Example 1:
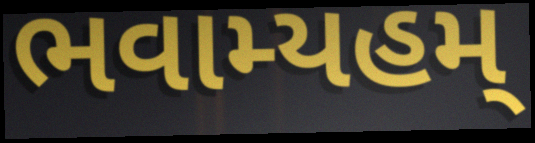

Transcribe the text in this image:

ભવામ્યહમ્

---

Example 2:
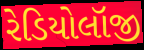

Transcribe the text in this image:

રેડિયોલૉજી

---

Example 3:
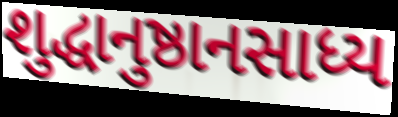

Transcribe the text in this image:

શુદ્ધાનુષ્ઠાનસાધ્ય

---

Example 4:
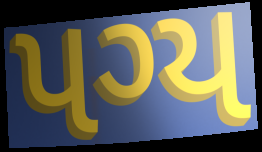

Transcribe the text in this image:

પગ્ય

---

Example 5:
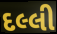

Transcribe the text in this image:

દલ્લી